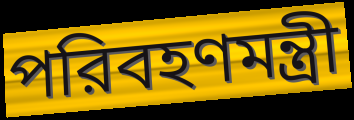
পরিবহণমন্ত্রী